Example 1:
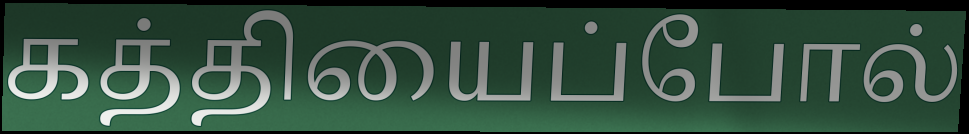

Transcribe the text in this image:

கத்தியைப்போல்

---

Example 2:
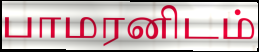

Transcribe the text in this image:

பாமரனிடம்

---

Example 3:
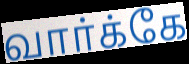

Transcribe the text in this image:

வார்க்கே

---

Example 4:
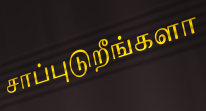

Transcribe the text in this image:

சாப்புடுறீங்களா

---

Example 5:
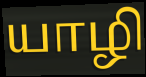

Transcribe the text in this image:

யாழி